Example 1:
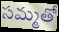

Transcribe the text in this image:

సమ్మతో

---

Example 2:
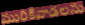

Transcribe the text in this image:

మురికివాడలను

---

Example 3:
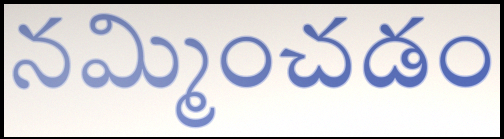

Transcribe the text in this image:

నమ్మించడం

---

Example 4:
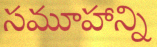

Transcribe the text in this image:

సమూహాన్ని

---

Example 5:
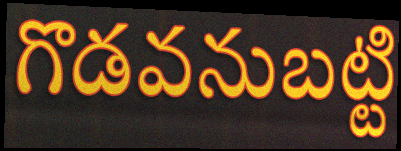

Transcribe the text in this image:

గొడవనుబట్టి